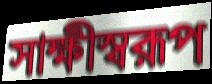
সাক্ষীস্বরূপ